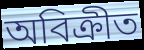
অবিক্রীত